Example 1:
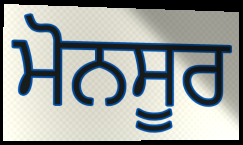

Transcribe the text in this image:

ਮੋਨਸੂਰ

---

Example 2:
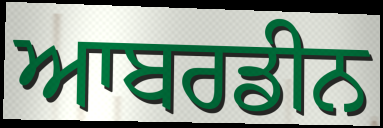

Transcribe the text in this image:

ਆਬਰਡੀਨ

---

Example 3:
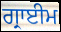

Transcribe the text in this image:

ਗ੍ਰਾਈਮ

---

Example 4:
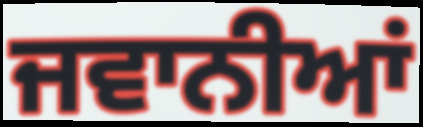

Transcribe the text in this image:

ਜਵਾਨੀਆਂ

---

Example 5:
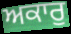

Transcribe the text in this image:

ਅਕਾਰੁ